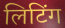
लिटिंग